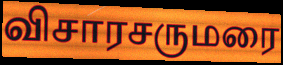
விசாரசருமரை